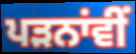
ਪੜਨਾਂਵੀਂ